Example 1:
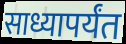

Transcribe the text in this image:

साध्यापर्यंत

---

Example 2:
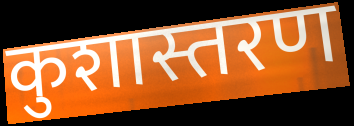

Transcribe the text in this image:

कुशास्तरण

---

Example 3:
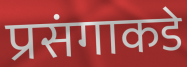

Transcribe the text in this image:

प्रसंगाकडे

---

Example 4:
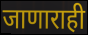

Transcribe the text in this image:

जाणाराही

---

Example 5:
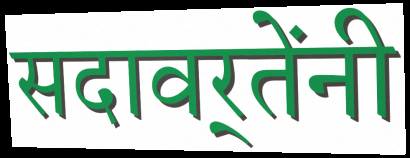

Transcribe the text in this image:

सदावर्तेंनी